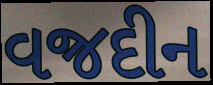
વજ્રદીન